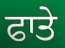
ਫਾਤੇ